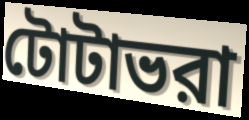
টোটাভরা